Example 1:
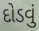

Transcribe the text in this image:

દોડવું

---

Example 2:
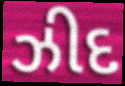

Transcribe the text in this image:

ઝીદ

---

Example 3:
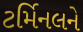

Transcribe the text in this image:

ટર્મિનલને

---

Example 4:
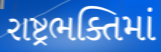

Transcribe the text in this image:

રાષ્ટ્રભક્તિમાં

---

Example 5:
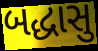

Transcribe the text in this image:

બદ્ધાસુ